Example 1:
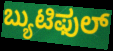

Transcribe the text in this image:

ಬ್ಯುಟಿಫುಲ್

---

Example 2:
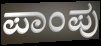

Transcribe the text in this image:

ಪಾಂಪು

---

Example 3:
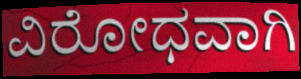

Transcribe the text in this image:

ವಿರೋಧವಾಗಿ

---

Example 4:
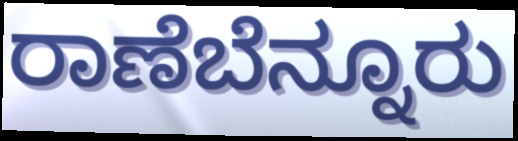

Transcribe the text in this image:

ರಾಣೆಬೆನ್ನೂರು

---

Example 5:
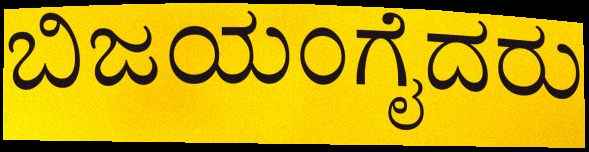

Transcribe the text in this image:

ಬಿಜಯಂಗೈದರು